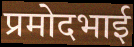
प्रमोदभाई